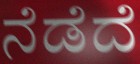
ನೆಡೆದೆ